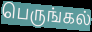
பெருங்கல்